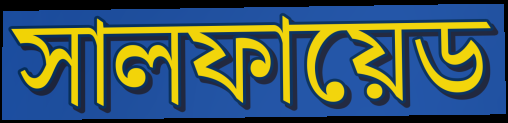
সালফায়েড